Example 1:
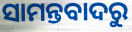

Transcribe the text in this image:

ସାମନ୍ତବାଦରୁ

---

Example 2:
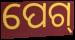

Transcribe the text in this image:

ପେଗ୍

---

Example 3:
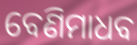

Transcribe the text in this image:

ବେଣିମାଧବ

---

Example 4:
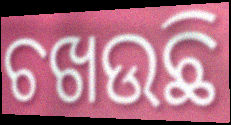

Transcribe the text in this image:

ଚଖଉଛି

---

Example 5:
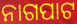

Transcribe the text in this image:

ନାଗପାଟ